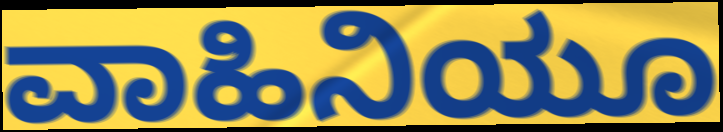
ವಾಹಿನಿಯೂ